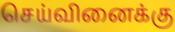
செய்வினைக்கு